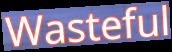
Wasteful